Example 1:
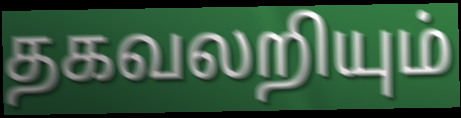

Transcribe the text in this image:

தகவலறியும்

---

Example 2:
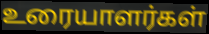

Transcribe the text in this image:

உரையாளர்கள்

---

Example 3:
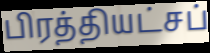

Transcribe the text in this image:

பிரத்தியட்சப்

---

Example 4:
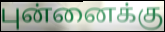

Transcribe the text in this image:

புன்னைக்கு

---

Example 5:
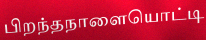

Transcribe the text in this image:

பிறந்தநாளையொட்டி